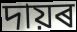
দায়ৰ